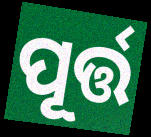
ପୂର୍ତ୍ତ